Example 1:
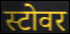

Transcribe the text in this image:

स्टोवर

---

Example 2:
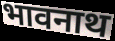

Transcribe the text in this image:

भावनाथ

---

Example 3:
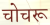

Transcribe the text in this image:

चोचरू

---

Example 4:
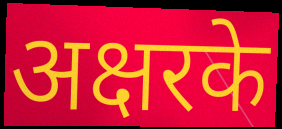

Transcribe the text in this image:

अक्षरके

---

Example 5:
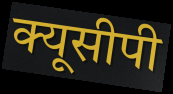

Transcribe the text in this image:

क्यूसीपी